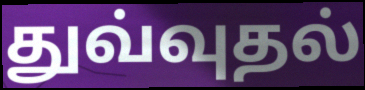
துவ்வுதல்